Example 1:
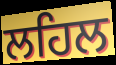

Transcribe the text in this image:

ਲਹਿਲ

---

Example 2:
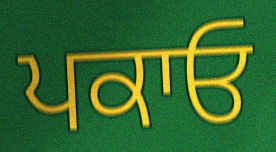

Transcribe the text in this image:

ਪਕਾਓ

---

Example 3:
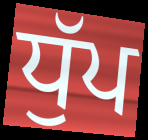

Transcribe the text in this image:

ਧੁੱਪ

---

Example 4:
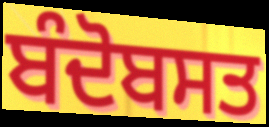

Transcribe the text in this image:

ਬੰਦੋਬਸਤ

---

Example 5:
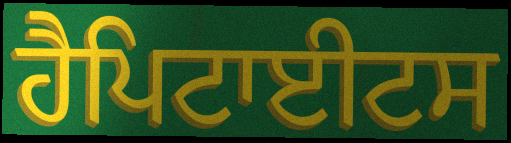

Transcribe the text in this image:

ਹੈਪਿਟਾਈਟਸ